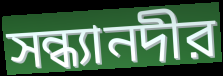
সন্ধ্যানদীর